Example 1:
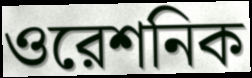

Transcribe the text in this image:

ওরেশনিক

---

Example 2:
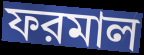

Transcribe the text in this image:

ফরমাল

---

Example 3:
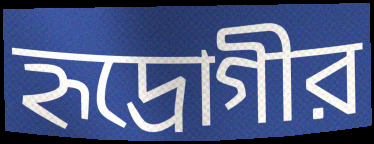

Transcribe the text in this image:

হৃদ্রোগীর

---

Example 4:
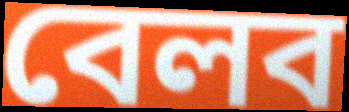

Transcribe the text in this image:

বেলব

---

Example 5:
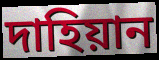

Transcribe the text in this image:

দাহিয়ান